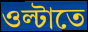
ওল্টাতে